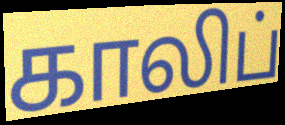
காலிப்